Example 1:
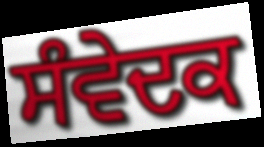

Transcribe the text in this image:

ਸੰਵੇਦਕ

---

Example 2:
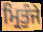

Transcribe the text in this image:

ਮ੍ਰਿਤੁੰਜੇ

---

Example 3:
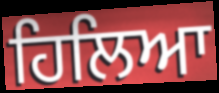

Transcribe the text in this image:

ਹਿਲਿਆ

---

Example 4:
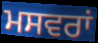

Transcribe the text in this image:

ਮਸਵਰਾਂ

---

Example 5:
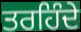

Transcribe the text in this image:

ਤਰਹਿੰਦੇ